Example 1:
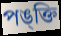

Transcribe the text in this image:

পঙ্‌ক্তি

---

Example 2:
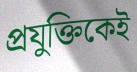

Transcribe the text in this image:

প্রযুক্তিকেই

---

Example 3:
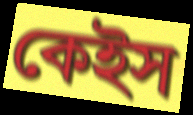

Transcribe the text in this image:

কেইস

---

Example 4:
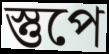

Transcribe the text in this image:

স্তুপে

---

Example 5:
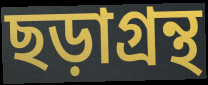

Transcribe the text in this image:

ছড়াগ্রন্থ